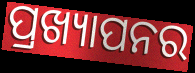
ପ୍ରଖ୍ୟାପନର